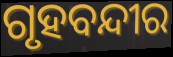
ଗୃହବନ୍ଦୀର